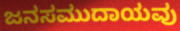
ಜನಸಮುದಾಯವು